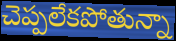
చెప్పలేకపోతున్నా